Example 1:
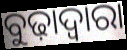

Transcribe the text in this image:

ବୁଢ଼ାଦ୍ୱାରା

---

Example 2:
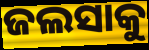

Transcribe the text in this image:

ଜଲସାକୁ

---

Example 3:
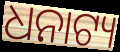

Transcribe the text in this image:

ଧନାଟ୍ୟ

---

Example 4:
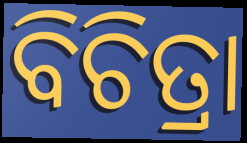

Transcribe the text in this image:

ବିଚିତ୍ରା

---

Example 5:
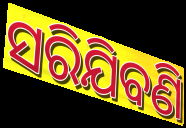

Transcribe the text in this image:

ସରିଯିବଣି